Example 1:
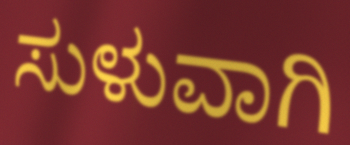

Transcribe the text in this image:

ಸುಳುವಾಗಿ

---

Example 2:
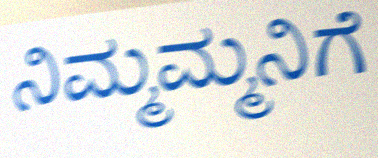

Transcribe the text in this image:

ನಿಮ್ಮಮ್ಮನಿಗೆ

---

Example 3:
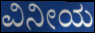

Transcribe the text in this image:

ವಿನೀಯ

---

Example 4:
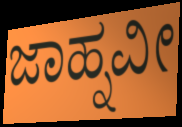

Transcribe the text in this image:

ಜಾಹ್ನವೀ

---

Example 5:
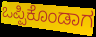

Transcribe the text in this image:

ಒಪ್ಪಿಕೊಂಡಾಗ